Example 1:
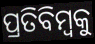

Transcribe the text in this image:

ପ୍ରତିବିମ୍ବକୁ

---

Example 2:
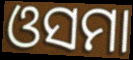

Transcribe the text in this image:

ଓସମା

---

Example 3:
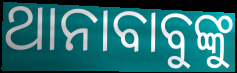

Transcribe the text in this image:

ଥାନାବାବୁଙ୍କୁ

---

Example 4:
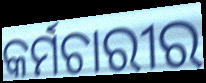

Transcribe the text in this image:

କର୍ମଚାରୀର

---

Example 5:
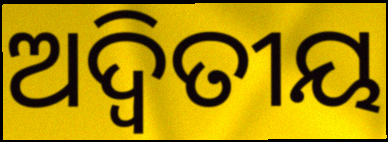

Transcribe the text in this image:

ଅଦ୍ଵିତୀୟ